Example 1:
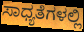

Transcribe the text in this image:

ಸಾಧ್ಯತೆಗಳಲ್ಲಿ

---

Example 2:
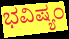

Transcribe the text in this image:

ಭವಿಷ್ಯಂ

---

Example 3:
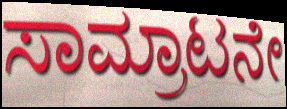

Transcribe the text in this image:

ಸಾಮ್ರಾಟನೇ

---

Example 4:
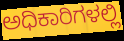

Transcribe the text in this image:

ಅಧಿಕಾರಿಗಳಲ್ಲಿ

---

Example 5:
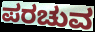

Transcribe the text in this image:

ಪರಚುವ